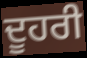
ਦੂਹਰੀ